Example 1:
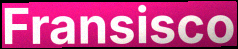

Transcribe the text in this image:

Fransisco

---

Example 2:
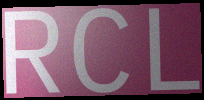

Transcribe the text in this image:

RCL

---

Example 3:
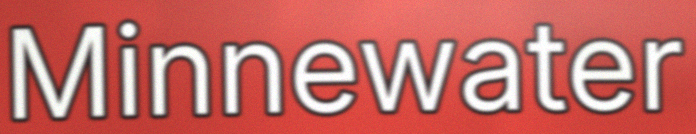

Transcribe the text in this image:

Minnewater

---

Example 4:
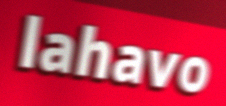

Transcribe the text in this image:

lahavo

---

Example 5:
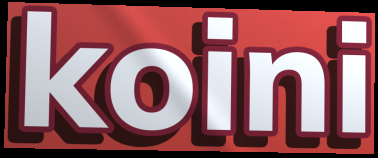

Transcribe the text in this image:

koini